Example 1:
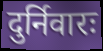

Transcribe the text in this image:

दुर्निवारः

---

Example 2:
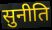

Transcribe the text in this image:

सुनीति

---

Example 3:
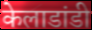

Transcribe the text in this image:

केलाडांडी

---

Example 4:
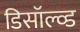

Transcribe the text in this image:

डिसॉल्व्ड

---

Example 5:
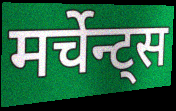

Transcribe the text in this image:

मर्चेन्ट्स